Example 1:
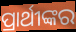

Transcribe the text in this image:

ପ୍ରାର୍ଥୀଙ୍କର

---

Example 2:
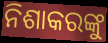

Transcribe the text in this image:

ନିଶାକରଙ୍କୁ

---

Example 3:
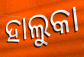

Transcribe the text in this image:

ହାଲୁକା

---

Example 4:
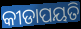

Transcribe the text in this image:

କୀଡାପୟତି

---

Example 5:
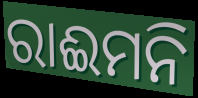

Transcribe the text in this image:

ରାଈମନି